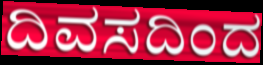
ದಿವಸದಿಂದ